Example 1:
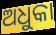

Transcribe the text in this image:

ଅଧୁକା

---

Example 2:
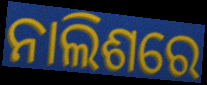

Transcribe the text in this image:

ନାଲିଶରେ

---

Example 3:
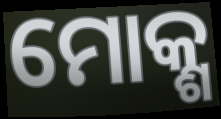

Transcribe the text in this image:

ମୋକ୍ଶ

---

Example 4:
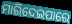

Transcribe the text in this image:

ମାରିଦେଇପାରେ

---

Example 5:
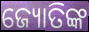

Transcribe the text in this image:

ଜ୍ୟୋତିଙ୍କ